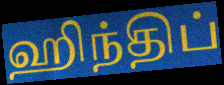
ஹிந்திப்